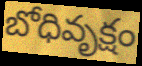
బోధివృక్షం